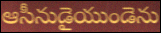
ఆసీనుడైయుండెను